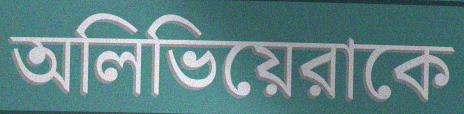
অলিভিয়েরাকে